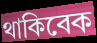
থাকিবেক